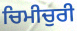
ਚਿਮੀਚੁਰੀ